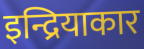
इन्द्रियाकार